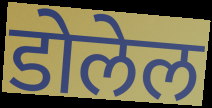
डोलेल